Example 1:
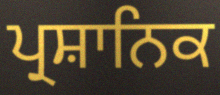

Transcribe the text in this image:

ਪ੍ਰਸ਼ਾਨਿਕ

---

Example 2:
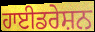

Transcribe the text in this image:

ਹਾਈਡਰੇਸ਼ਨ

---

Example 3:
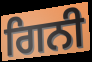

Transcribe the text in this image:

ਗਿਨੀ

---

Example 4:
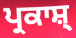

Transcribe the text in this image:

ਪ੍ਰਕਾਸ਼੍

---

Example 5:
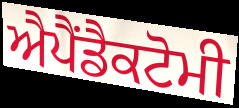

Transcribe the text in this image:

ਐਪੈਂਡੈਕਟੋਮੀ